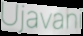
Ujavani